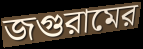
জগুরামের